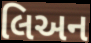
લિઅન